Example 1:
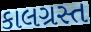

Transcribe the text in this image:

કાલગ્રસ્ત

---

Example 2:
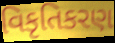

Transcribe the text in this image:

વિકૃતિકરણ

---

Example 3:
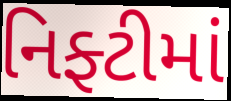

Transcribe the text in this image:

નિફ્ટીમાં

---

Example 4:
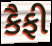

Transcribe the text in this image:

કૈફી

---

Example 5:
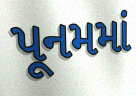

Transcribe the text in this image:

પૂનમમાં